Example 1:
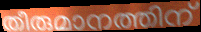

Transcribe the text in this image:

തീരുമാനത്തിന്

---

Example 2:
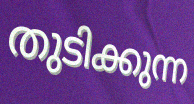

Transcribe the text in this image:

തുടിക്കുന്ന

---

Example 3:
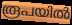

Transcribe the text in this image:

രൂപയിൽ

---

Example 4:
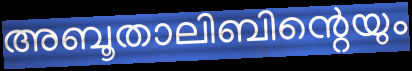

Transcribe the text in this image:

അബൂതാലിബിന്റെയും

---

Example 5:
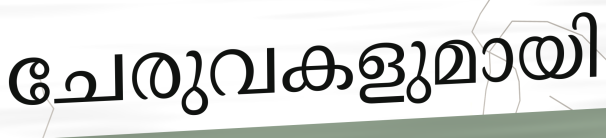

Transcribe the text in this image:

ചേരുവകളുമായി